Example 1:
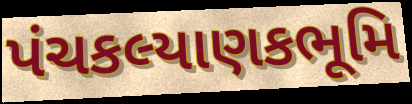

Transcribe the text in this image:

પંચકલ્યાણકભૂમિ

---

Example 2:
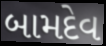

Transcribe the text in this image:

બામદેવ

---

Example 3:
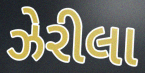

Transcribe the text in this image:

ઝેરીલા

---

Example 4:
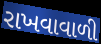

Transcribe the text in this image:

રાખવાવાળી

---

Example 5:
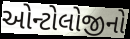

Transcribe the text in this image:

ઓન્ટોલોજીનો